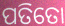
ପତିତୋ